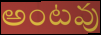
అంటవు